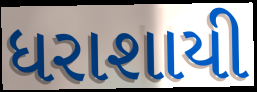
ધરાશાયી